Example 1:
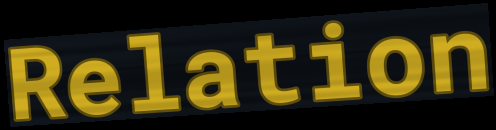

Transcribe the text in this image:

Relation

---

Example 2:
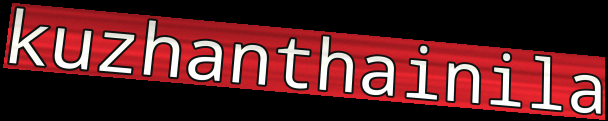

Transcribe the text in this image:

kuzhanthainila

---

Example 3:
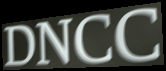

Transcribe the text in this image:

DNCC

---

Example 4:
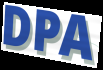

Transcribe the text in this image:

DPA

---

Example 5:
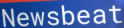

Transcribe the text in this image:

Newsbeat